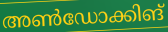
അൺഡോക്കിങ്